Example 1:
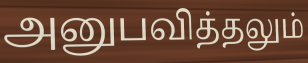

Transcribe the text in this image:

அனுபவித்தலும்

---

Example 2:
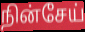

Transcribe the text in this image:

நின்சேய்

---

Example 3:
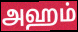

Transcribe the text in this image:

அஹம்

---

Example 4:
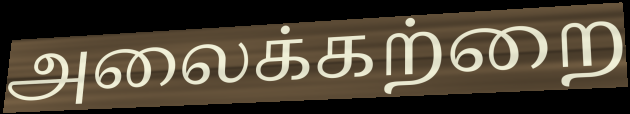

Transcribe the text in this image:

அலைக்கற்றை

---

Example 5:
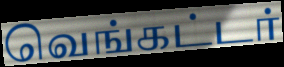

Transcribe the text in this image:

வெங்கட்டர்